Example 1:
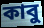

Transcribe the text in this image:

কাবু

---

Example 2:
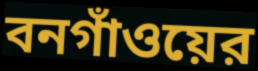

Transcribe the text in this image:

বনগাঁওয়ের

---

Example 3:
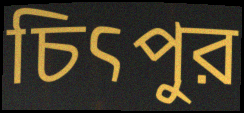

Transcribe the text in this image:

চিৎপুর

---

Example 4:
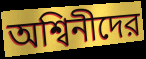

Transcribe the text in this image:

অশ্বিনীদের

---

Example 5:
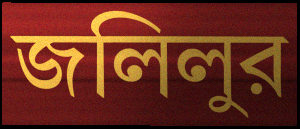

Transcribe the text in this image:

জলিলুর